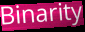
Binarity